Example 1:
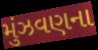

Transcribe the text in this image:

મુંઝવણના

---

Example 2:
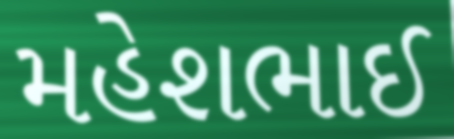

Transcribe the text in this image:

મહેશભાઈ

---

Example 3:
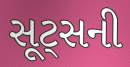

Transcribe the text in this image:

સૂટ્સની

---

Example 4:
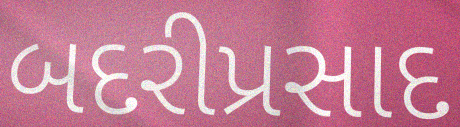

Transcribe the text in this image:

બદરીપ્રસાદ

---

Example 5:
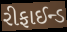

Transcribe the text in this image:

રીફાઈન્ડ